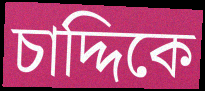
চাদ্দিকে